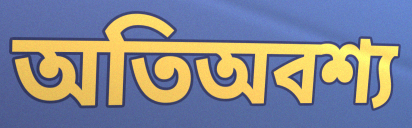
অতিঅবশ্য